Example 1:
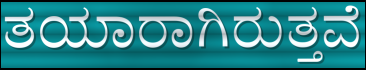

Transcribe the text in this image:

ತಯಾರಾಗಿರುತ್ತವೆ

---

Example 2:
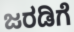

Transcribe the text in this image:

ಜರಡಿಗೆ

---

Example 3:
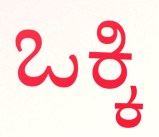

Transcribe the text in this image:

ಒಕ್ಕಿ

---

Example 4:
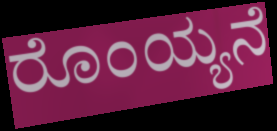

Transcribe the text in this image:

ರೊಂಯ್ಯನೆ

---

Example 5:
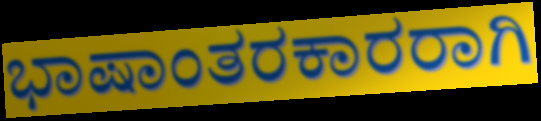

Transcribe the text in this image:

ಭಾಷಾಂತರಕಾರರಾಗಿ